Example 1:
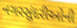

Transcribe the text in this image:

નગરસુંદરીઓની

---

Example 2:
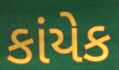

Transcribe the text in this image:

કાંયેક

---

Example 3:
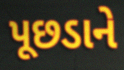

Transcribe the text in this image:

પૂછડાને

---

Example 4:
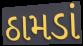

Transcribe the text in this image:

ઠામડાં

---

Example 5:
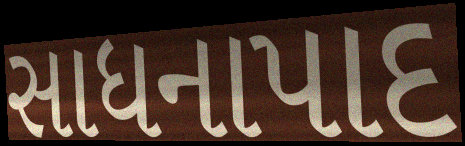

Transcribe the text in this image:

સાધનાપાદ